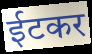
ईटकर